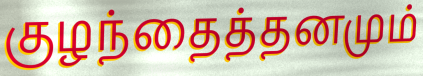
குழந்தைத்தனமும்